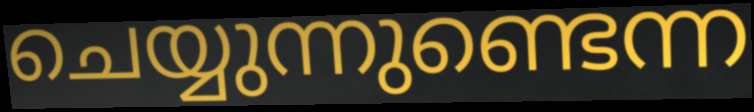
ചെയ്യുന്നുണ്ടെന്ന